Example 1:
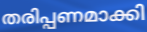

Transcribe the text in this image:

തരിപ്പണമാക്കി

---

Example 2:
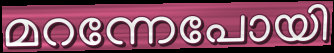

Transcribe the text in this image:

മറന്നേപോയി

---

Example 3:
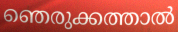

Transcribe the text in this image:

ഞെരുക്കത്താൽ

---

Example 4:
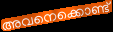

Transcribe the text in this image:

അവനെക്കൊണ്ട്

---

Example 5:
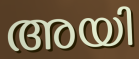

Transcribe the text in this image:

അയി